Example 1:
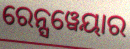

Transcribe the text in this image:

ରେନ୍ସୱେୟାର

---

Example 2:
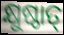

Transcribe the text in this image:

କ୍ଷୁଷ୍ଠାତ୍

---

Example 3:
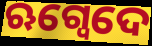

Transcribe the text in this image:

ଋଗ୍ଵେଦେ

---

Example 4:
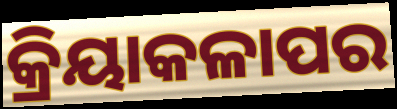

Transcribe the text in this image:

କ୍ରିୟାକଳାପର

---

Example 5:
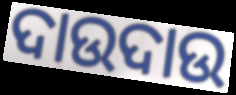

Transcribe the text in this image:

ଦାଉଦାଉ